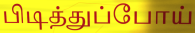
பிடித்துப்போய்